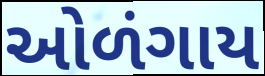
ઓળંગાય